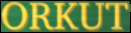
ORKUT